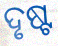
ଦୃଷ୍ଟ